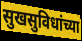
सुखसुविधांच्या